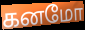
கனமோ